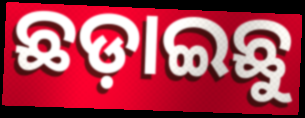
ଛଡ଼ାଇଛୁ